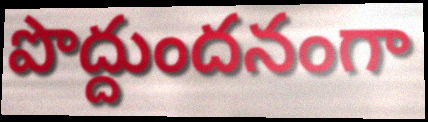
పొద్దుందనంగా